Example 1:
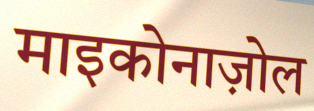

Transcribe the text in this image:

माइकोनाज़ोल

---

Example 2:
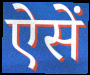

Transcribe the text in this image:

ऐसें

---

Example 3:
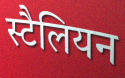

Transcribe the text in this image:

स्टैलियन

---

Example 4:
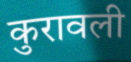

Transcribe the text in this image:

कुरावली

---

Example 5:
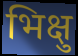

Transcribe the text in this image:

भिक्षु